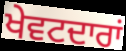
ਖੇਵਟਦਾਰਾਂ